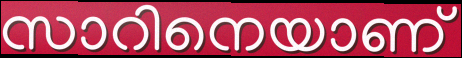
സാറിനെയാണ്